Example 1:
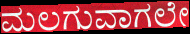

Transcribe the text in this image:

ಮಲಗುವಾಗಲೇ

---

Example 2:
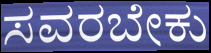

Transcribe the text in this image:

ಸವರಬೇಕು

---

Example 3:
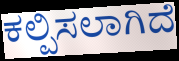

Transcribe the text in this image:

ಕಲ್ಪಿಸಲಾಗಿದೆ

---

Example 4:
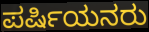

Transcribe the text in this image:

ಪರ್ಷಿಯನರು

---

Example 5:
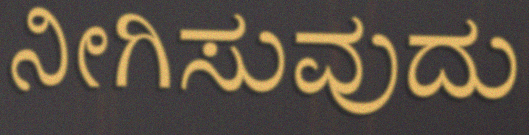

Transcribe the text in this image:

ನೀಗಿಸುವುದು